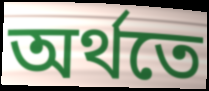
অৰ্থতে